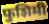
फुशिमी